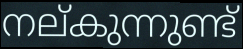
നല്കുന്നുണ്ട്